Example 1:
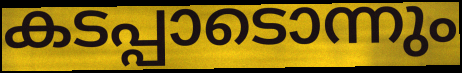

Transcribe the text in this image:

കടപ്പാടൊന്നും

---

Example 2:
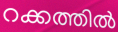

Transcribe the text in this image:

റക്കത്തിൽ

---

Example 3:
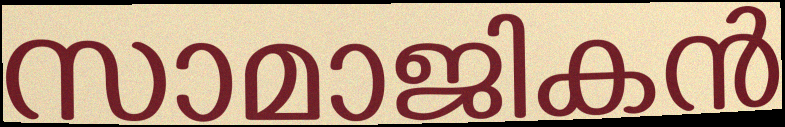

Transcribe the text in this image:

സാമാജികൻ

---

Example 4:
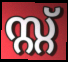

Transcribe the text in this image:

സ്റ്റ്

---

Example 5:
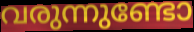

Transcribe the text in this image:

വരുന്നുണ്ടോ